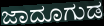
ಜಾದೂಗುಡ